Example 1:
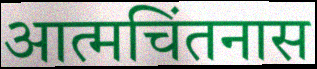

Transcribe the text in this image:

आत्मचिंतनास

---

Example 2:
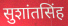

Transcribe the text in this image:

सुशांतसिंह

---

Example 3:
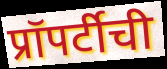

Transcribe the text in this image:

प्रॉपर्टीची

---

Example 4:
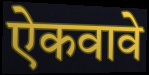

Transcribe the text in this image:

ऐकवावे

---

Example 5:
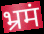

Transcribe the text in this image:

भ्रमं